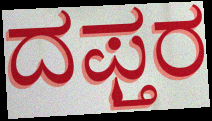
ದಫ್ತರ